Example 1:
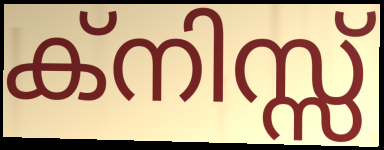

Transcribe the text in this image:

ക്നിസ്സ്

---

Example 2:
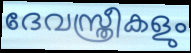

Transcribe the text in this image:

ദേവസ്ത്രീകളും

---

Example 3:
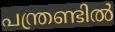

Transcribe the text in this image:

പന്ത്രണ്ടിൽ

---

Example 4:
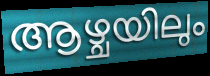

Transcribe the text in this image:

ആഴ്ചയിലും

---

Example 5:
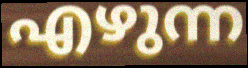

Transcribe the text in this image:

എഴുന്ന